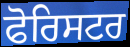
ਫੋਰਿਸਟਰ